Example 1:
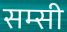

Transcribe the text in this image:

सम्सी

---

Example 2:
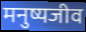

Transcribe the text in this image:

मनुष्यजीव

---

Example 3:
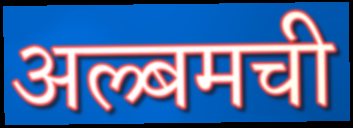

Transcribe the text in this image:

अल्बमची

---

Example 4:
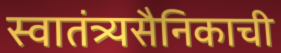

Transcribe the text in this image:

स्वातंत्र्यसैनिकाची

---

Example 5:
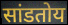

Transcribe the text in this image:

सांडतोय